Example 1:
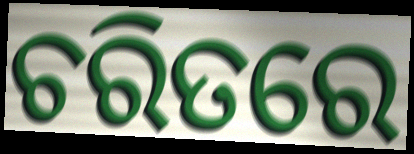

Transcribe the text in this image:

ଚରିତରେ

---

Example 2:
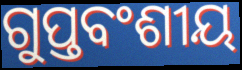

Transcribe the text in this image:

ଗୁପ୍ତବଂଶୀୟ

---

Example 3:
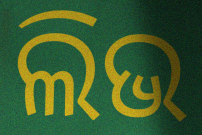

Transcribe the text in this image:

ଲିଭ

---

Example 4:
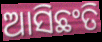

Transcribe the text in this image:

ଆସିଛଂତି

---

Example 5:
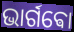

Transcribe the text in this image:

ଭାର୍ଗଵୋ